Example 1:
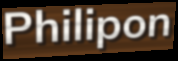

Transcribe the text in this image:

Philipon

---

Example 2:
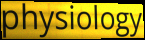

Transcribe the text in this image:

physiology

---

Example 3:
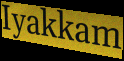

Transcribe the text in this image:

Iyakkam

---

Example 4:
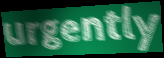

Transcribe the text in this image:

urgently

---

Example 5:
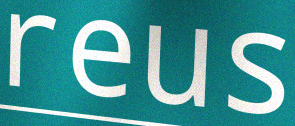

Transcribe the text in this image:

reus